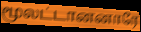
மூலட்டானனாரே